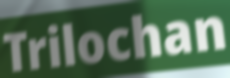
Trilochan